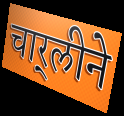
चार्लीने